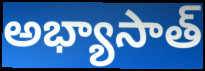
అభ్యాసాత్